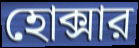
হোক্সার